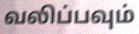
வலிப்பவும்